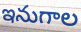
ఇనుగాల